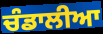
ਚੰਡਾਲੀਆ